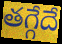
తగ్గేదే